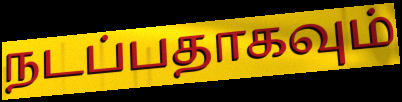
நடப்பதாகவும்